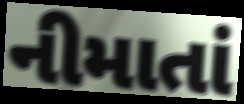
નીમાતાં